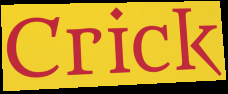
Crick